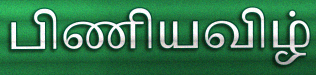
பிணியவிழ்